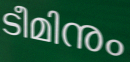
ടീമിനും